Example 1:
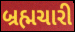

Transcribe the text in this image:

બ્રહ્મચારી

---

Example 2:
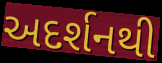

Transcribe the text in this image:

અદર્શનથી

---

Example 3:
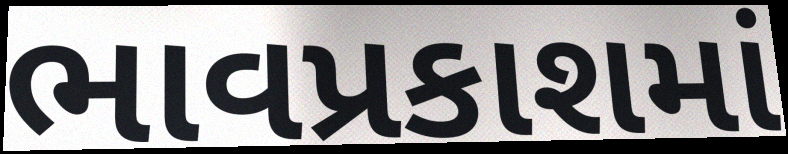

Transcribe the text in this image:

ભાવપ્રકાશમાં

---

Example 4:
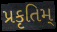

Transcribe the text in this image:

પ્રકૃતિમ્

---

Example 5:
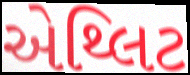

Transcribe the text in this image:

એથ્લિટ